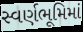
સ્વર્ણભૂમિમાં